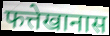
फत्तेखानास